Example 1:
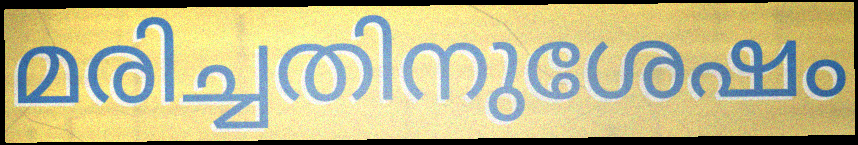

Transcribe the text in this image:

മരിച്ചതിനുശേഷം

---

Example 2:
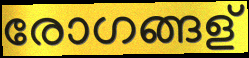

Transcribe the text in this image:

രോഗങ്ങള്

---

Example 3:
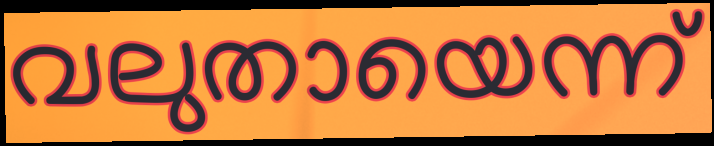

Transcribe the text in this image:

വലുതായെന്ന്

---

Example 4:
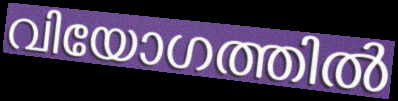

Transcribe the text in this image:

വിയോഗത്തിൽ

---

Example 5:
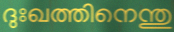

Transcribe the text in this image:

ദുഃഖത്തിനെന്തു